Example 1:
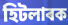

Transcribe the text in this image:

হিটলাৰক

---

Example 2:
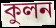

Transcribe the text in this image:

কুলন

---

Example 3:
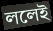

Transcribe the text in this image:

ললেই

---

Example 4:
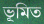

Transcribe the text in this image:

ভূমিত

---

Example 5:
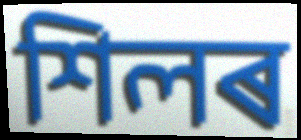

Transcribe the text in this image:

শিলৰ